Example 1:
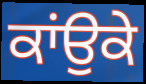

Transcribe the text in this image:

ਕਾਂਉਕੇ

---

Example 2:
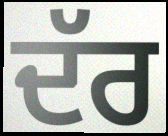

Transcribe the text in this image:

ਦੱਰ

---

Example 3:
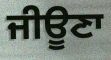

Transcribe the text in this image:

ਜੀਊਣਾ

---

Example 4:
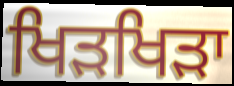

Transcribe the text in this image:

ਖਿੜਖਿੜਾ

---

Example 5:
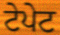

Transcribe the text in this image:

ਟੇਪੇਟ